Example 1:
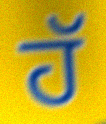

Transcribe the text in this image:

ਹੱ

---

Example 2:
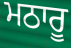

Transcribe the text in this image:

ਮਠਾਰੂ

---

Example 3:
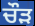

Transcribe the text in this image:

ਚੌੜ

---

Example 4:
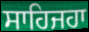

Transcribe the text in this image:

ਸਾਹਿਜਹਾ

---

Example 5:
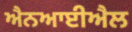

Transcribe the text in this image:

ਐਨਆਈਐਲ